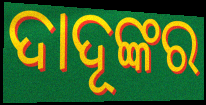
ଦାଦୂଙ୍କର